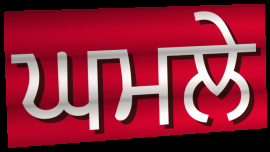
ਘਮਲੇ